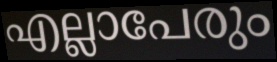
എല്ലാപേരും